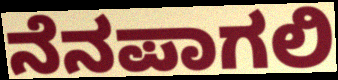
ನೆನಪಾಗಲಿ